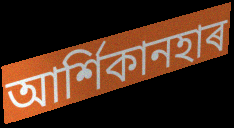
আৰ্শিকানহাৰ